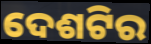
ଦେଶଟିର